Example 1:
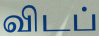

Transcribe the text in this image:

விடப்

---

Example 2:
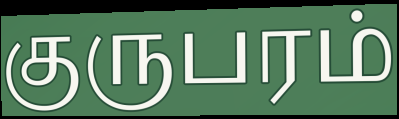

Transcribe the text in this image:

குருபரம்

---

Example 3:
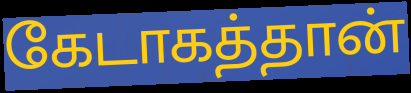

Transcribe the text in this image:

கேடாகத்தான்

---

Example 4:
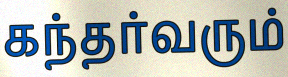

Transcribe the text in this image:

கந்தர்வரும்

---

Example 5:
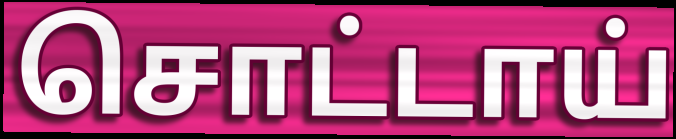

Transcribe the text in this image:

சொட்டாய்